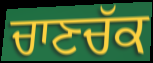
ਚਾਣਚੱਕ